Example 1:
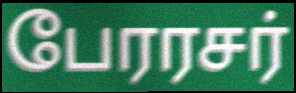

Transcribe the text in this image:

பேரரசர்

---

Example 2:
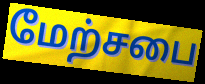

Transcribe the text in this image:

மேற்சபை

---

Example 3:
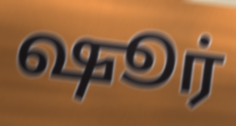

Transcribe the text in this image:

ஷூர்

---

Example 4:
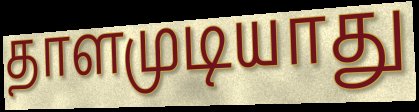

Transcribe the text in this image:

தாளமுடியாது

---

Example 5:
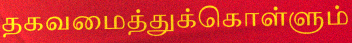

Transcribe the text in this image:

தகவமைத்துக்கொள்ளும்